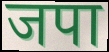
जपा